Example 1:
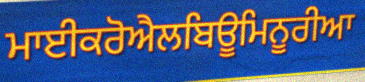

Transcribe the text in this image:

ਮਾਈਕਰੋਐਲਬਿਊਮਿਨੂਰੀਆ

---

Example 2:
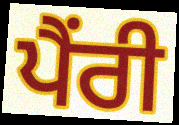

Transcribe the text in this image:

ਪੈਂਰੀ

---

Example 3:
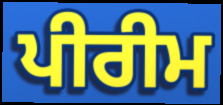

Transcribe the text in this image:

ਪੀਰੀਮ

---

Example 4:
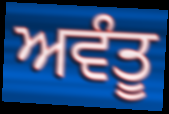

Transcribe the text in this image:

ਅਵੰਤੂ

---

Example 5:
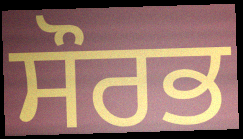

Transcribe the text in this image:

ਸੌਰਭ